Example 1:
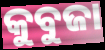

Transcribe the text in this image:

କୁବୁଜା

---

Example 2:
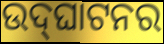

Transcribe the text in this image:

ଉଦ୍‌ଘାଟନର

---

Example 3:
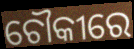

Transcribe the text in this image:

ଚୌକୀରେ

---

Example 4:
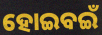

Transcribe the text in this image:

ହୋଇବଇଁ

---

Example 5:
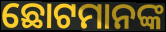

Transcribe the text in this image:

ଛୋଟମାନଙ୍କ